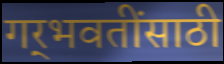
गर्भवतींसाठी